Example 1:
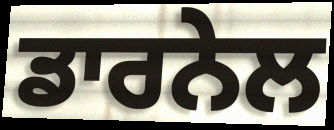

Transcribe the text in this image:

ਡਾਰਨੇਲ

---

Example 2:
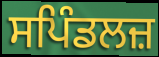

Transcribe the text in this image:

ਸਪਿੰਡਲਜ਼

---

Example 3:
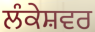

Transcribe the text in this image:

ਲੰਕੇਸ਼ਵਰ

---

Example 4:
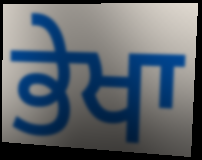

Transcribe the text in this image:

ਭੇਖਾ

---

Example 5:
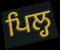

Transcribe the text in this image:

ਪਿਲ੍ਹ